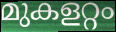
മുകളറ്റം